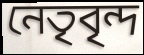
নেতৃবৃন্দ